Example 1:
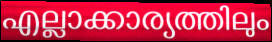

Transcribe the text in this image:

എല്ലാക്കാര്യത്തിലും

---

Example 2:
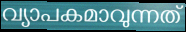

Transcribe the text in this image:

വ്യാപകമാവുന്നത്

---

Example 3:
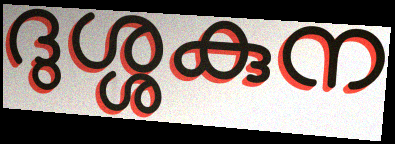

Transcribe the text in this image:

ദുശ്ശകുന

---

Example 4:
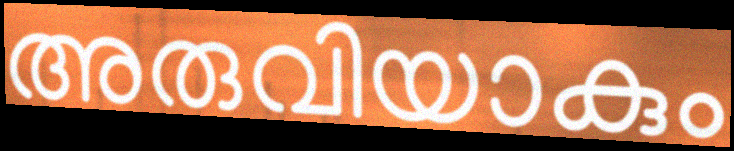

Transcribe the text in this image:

അരുവിയാകും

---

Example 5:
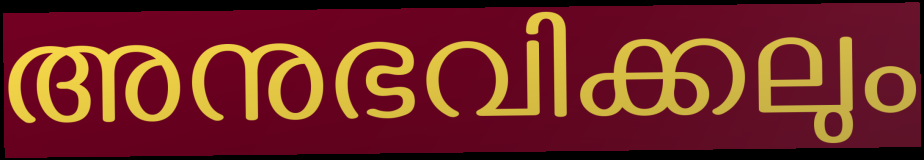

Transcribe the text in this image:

അനുഭവിക്കലും